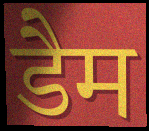
डैम